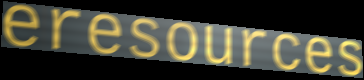
eresources